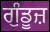
ਗੁੰਡੂਜ਼